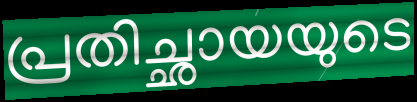
പ്രതിച്ഛായയുടെ